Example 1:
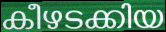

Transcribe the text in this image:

കീഴടക്കിയ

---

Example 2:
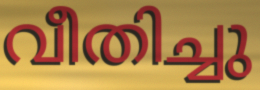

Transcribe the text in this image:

വീതിച്ചു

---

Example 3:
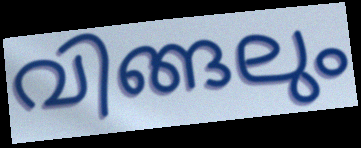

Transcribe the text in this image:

വിങ്ങലും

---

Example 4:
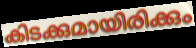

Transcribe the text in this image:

കിടക്കുമായിരിക്കും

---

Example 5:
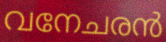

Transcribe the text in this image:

വനേചരൻ